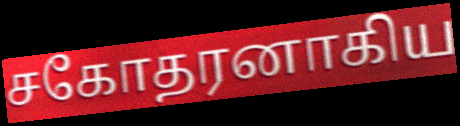
சகோதரனாகிய